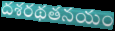
దశరథతనయం